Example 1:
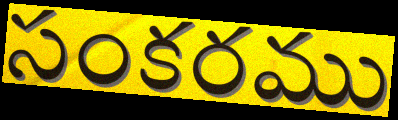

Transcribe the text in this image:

సంకరము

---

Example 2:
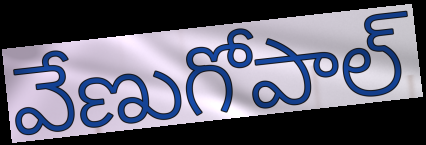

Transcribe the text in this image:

వేణుగోపాల్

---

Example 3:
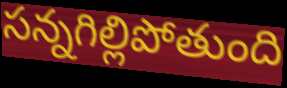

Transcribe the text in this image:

సన్నగిల్లిపోతుంది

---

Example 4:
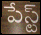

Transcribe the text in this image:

పేస్ట్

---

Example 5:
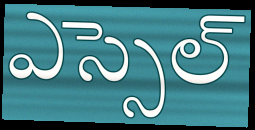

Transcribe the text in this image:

ఎస్సెల్